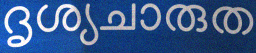
ദൃശ്യചാരുത